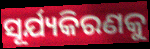
ସୂର୍ଯ୍ୟକିରଣକୁ